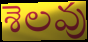
శెలవు